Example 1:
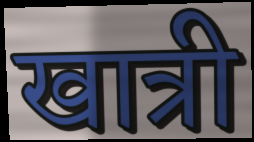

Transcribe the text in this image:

खात्री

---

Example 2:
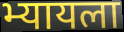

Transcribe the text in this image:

भ्यायला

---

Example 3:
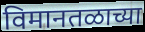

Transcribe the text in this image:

विमानतळाच्या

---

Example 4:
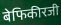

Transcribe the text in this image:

बेफिकीरजी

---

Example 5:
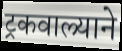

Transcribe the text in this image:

ट्रकवाल्याने